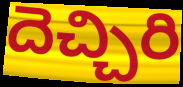
దెచ్చిరి